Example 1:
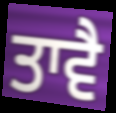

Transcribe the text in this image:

ਤਾਵੈ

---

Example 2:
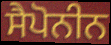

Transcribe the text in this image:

ਸੈਪੋਨੀਨ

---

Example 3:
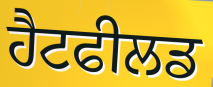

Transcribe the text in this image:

ਹੈਟਫੀਲਡ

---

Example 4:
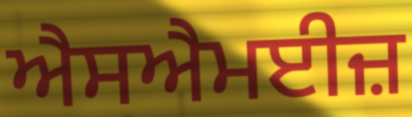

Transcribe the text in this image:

ਐਸਐਮਈਜ਼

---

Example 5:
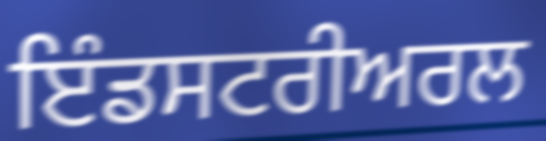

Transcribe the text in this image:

ਇੰਡਸਟਰੀਅਰਲ